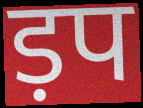
ड़प